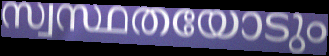
സ്വസ്ഥതയോടും